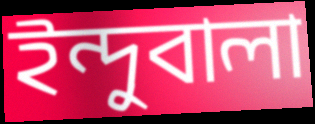
ইন্দুবালা